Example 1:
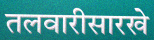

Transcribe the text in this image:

तलवारीसारखे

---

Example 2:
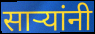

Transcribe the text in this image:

साऱ्यांनी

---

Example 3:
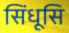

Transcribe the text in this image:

सिंधूसि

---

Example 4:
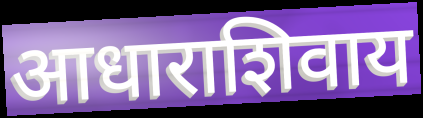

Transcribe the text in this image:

आधाराशिवाय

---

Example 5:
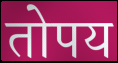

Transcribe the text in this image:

तोपय